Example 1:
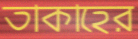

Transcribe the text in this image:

তাকাহের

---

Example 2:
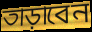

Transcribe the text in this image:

তাড়াবেন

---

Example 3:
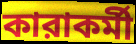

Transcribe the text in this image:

কারাকর্মী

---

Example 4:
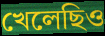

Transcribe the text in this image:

খেলেছিও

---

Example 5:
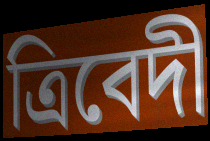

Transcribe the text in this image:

ত্রিবেদী